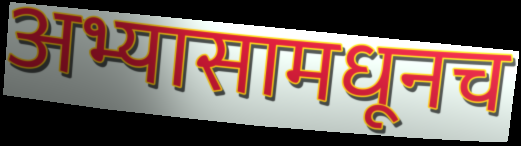
अभ्यासामधूनच